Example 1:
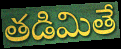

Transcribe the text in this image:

తడిమితే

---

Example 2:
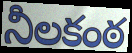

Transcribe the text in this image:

నీలకంఠ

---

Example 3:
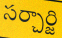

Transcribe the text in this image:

సర్చార్జి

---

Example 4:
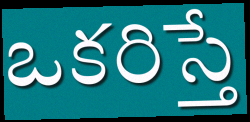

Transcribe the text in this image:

ఒకరిస్తే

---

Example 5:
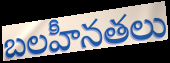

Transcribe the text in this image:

బలహీనతలు